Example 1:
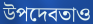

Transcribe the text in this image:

উপদেবতাও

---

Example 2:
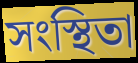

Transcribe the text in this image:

সংস্থিতা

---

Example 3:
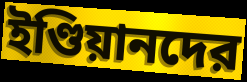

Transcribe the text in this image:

ইণ্ডিয়ানদের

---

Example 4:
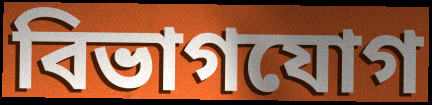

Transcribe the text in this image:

বিভাগযোগ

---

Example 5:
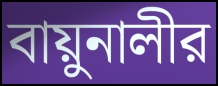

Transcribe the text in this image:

বায়ুনালীর